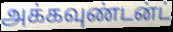
அக்கவுண்டன்ட்